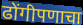
ढोंगीपणाचा